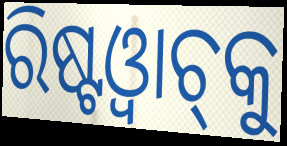
ରିଷ୍ଟଓ୍ୱାଚ୍‍କୁ